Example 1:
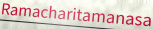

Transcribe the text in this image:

Ramacharitamanasa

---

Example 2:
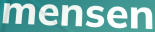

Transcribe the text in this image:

mensen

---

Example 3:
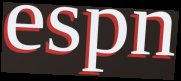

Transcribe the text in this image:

espn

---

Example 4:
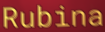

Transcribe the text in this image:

Rubina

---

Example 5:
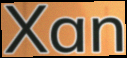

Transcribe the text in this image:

Xan